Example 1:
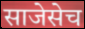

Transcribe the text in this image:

साजेसेच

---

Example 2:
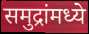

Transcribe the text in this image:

समुद्रांमध्ये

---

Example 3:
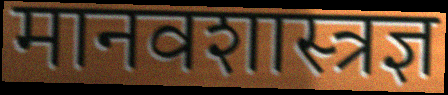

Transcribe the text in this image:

मानवशास्त्रज्ञ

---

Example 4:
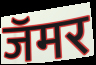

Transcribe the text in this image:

जॅमर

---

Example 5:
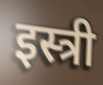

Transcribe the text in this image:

इस्त्री